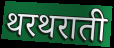
थरथराती